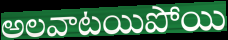
అలవాటయిపోయి